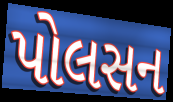
પોલસન